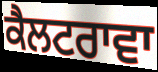
ਕੈਲਟਰਾਵਾ